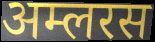
अम्लरस